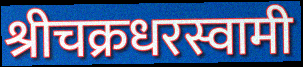
श्रीचक्रधरस्वामी